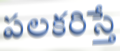
పలకరిస్తే